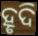
ହୃଦି